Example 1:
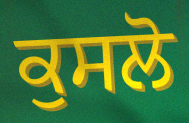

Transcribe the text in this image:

ਕੁਸਲੋ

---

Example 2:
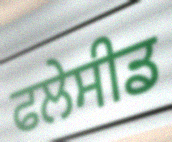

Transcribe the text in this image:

ਫਲੇਸੀਡ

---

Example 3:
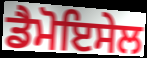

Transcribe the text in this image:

ਡੈਮੋਇਸੇਲ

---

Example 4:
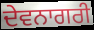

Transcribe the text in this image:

ਦੇਵਨਾਗਰੀ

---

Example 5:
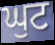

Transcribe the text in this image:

ਘੁਟ